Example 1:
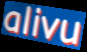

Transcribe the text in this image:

alivu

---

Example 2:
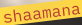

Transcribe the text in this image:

shaamana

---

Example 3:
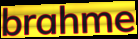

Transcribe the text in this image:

brahme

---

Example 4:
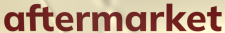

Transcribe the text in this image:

aftermarket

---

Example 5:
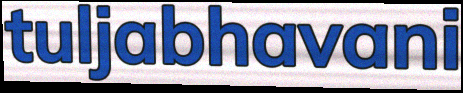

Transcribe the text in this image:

tuljabhavani